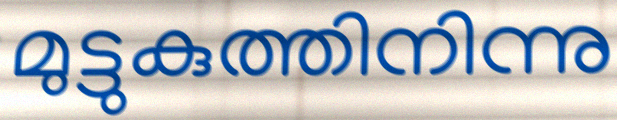
മുട്ടുകുത്തിനിന്നു